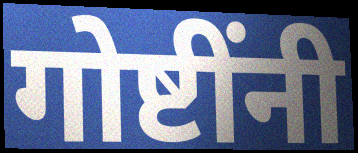
गोष्टींनी